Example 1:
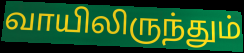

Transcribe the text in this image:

வாயிலிருந்தும்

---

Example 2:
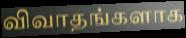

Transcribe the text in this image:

விவாதங்களாக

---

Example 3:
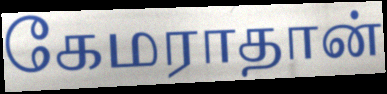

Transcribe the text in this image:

கேமராதான்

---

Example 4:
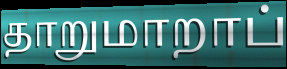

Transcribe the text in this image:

தாறுமாறாப்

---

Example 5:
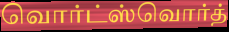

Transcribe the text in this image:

வொர்ட்ஸ்வொர்த்